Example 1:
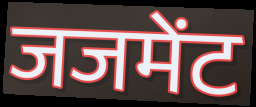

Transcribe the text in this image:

जजमेंट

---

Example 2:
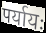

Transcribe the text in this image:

पर्यायः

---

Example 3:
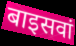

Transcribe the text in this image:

बाइसवां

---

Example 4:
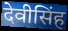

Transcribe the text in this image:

देवीसिंह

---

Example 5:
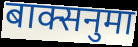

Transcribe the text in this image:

बाक्सनुमा